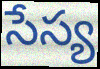
సేస్య